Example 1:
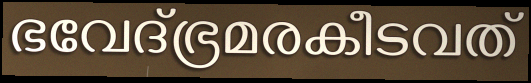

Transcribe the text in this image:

ഭവേദ്ഭ്രമരകീടവത്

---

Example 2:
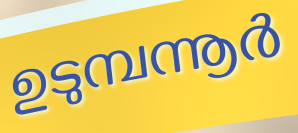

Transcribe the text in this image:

ഉടുമ്പന്നൂർ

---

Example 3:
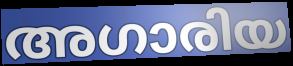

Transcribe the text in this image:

അഗാരിയ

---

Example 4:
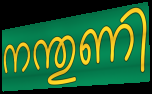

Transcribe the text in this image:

നന്തുണി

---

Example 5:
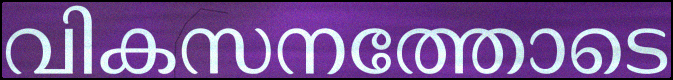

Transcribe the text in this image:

വികസനത്തോടെ